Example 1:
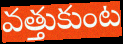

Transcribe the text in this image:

వత్తుకుంట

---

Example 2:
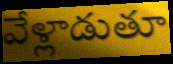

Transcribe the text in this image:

వేళ్లాడుతూ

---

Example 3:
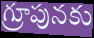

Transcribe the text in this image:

గ్రూపునకు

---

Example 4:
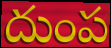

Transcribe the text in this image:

దుంప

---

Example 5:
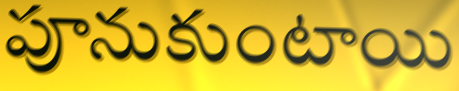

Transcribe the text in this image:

పూనుకుంటాయి